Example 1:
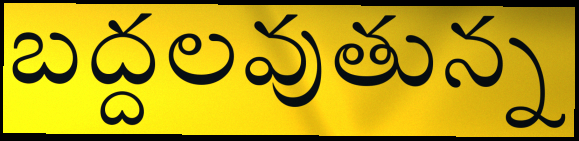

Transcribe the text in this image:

బద్దలవుతున్న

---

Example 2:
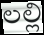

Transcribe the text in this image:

లల్లి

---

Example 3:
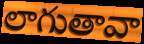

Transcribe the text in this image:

లాగుతావా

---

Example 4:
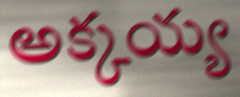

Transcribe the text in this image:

అక్కయ్య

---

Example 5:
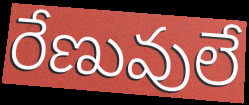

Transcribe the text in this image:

రేణువులే